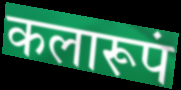
कलारूपं